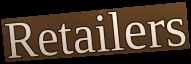
Retailers